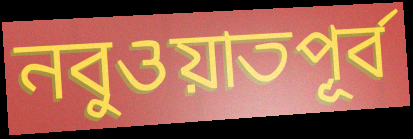
নবুওয়াতপূর্ব